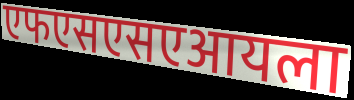
एफएसएसएआयला